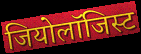
जियोलॉजिस्ट